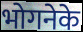
भोगनेके